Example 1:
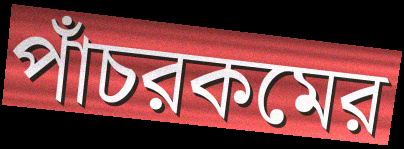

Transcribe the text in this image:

পাঁচরকমের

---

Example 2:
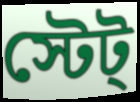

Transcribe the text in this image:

স্টেট্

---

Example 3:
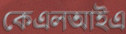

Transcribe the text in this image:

কেএলআইএ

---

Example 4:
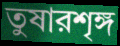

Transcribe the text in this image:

তুষারশৃঙ্গ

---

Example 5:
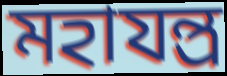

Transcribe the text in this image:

মহাযন্ত্র